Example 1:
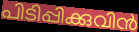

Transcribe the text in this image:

പിടിപ്പിക്കുവിൻ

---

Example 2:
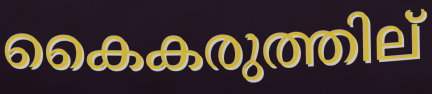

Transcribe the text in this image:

കൈകരുത്തില്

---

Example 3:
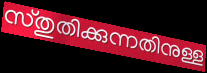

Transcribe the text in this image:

സ്തുതിക്കുന്നതിനുള്ള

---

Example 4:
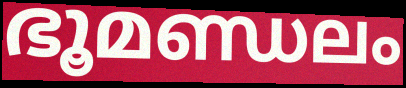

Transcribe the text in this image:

ഭൂമണ്ഡലം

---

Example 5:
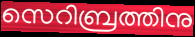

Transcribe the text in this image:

സെറിബ്രത്തിനു